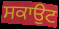
ਸਕਾਉਟ